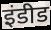
इंडीड